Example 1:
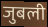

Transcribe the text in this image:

जुबली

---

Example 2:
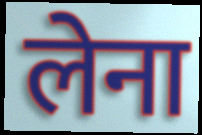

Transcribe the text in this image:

लेना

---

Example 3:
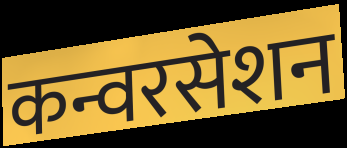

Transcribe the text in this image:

कन्वरसेशन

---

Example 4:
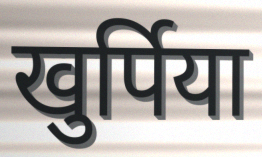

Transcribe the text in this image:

खुर्पिया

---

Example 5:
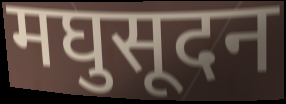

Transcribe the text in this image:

मघुसूदन